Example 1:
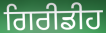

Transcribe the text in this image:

ਗਿਰੀਡੀਹ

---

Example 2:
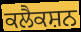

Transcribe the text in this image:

ਕਲੈਕਸ਼ਨ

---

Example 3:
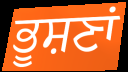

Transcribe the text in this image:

ਭੂਸ਼ਣਾਂ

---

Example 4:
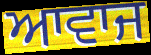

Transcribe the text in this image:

ਆਵਾਜ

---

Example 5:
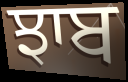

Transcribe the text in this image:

ਝਾਬ